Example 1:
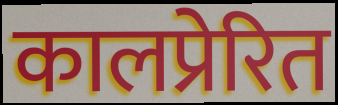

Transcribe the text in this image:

कालप्रेरित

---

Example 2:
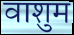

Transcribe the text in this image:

वाशुम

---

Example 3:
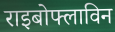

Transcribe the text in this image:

राइबोफ्लाविन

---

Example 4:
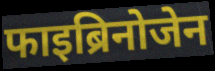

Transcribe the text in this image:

फाइब्रिनोजेन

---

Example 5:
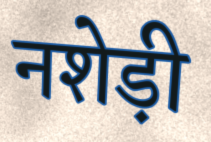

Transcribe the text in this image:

नशेड़ी